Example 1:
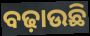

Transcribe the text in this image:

ବଢ଼ାଉଛି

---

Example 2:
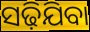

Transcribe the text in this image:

ସଢ଼ିଯିବା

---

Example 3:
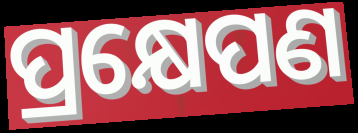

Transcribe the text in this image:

ପ୍ରକ୍ଷେପଣ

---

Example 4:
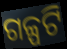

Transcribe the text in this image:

ଗଳ୍ପଟି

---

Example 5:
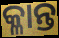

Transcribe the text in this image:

କ୍ଳାନ୍ତ